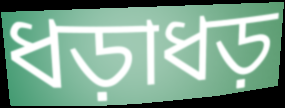
ধড়াধড়